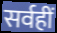
सर्वहीं